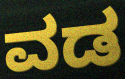
ವಡ